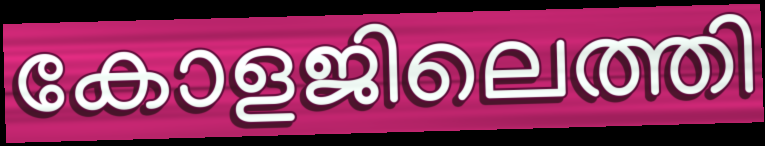
കോളജിലെത്തി